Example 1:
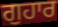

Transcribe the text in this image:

ਗੁਹਾਰ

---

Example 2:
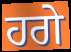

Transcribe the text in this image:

ਹਗੇ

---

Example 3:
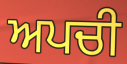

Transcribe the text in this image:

ਅਪਚੀ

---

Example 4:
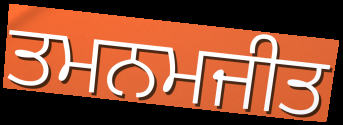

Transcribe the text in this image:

ਤਮਨਮਜੀਤ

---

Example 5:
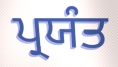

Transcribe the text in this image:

ਪ੍ਰਯੰਤ